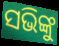
ସଭିଙ୍କୁ